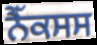
ਨੈੱਕਸਸ